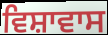
ਵਿਸ਼ਾਵਾਸ